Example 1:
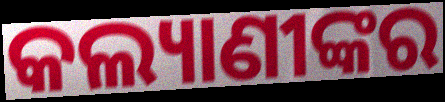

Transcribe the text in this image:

କଲ୍ୟାଣୀଙ୍କର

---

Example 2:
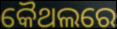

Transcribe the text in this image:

କୈଥଲରେ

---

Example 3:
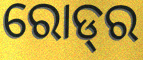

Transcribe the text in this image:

ରୋଡ୍‌ର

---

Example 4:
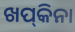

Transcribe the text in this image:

ଖପ୍‍କିନା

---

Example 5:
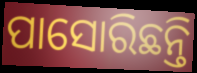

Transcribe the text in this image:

ପାସୋରିଛନ୍ତି